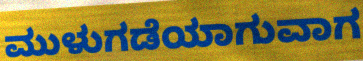
ಮುಳುಗಡೆಯಾಗುವಾಗ